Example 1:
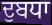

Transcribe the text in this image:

ਦੁਬਧਾ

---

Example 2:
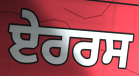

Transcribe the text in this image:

ਏਰਰਸ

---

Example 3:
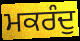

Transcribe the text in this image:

ਮਕਰੰਦੁ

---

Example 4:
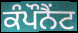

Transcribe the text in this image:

ਕੰਪੌਨੈਂਟ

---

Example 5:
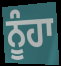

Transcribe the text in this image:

ਨੂੰਹਾ